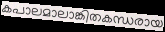
കപാലമാലാങ്കിതകന്ധരായ